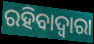
ରହିବାଦ୍ଵାରା